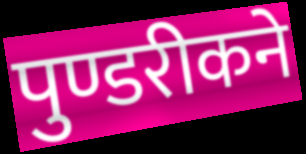
पुण्डरीकने